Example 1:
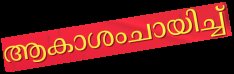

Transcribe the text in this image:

ആകാശംചായിച്ച്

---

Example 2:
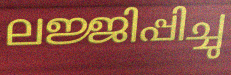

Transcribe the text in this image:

ലജ്ജിപ്പിച്ചു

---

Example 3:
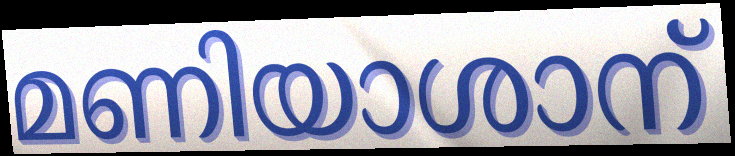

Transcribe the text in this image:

മണിയാശാന്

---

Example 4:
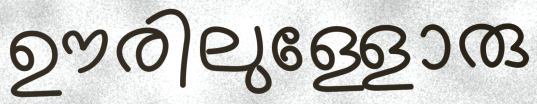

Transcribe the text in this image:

ഊരിലുള്ളോരു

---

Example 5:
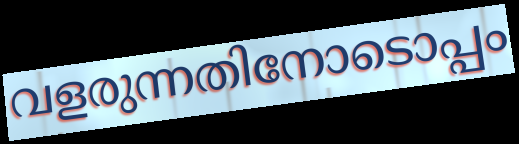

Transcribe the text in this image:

വളരുന്നതിനോടൊപ്പം